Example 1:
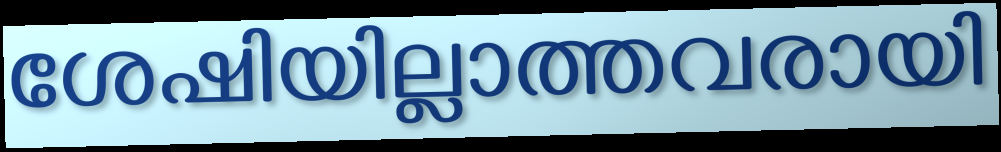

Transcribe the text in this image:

ശേഷിയില്ലാത്തവരായി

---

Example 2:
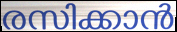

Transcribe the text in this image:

രസിക്കാൻ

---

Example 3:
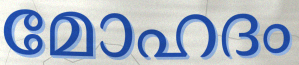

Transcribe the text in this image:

മോഹദം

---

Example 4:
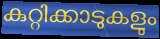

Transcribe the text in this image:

കുറ്റിക്കാടുകളും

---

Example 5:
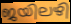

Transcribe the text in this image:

ജയിലഴി